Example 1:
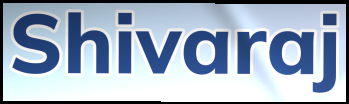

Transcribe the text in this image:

Shivaraj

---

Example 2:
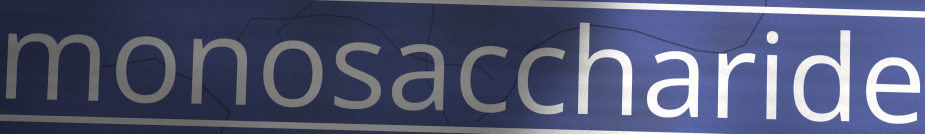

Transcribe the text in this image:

monosaccharide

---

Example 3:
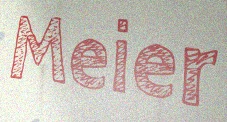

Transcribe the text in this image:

Meier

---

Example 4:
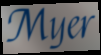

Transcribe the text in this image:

Myer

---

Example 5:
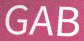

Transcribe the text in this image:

GAB